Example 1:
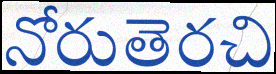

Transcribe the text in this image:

నోరుతెరచి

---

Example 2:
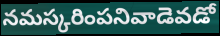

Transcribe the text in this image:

నమస్కరింపనివాడెవడో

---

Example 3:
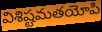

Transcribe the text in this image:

విశిష్టమతయోపి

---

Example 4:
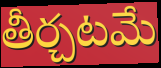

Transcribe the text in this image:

తీర్చటమే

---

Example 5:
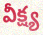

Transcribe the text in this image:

వీక్ష్య